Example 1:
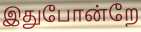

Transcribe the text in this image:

இதுபோன்றே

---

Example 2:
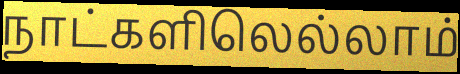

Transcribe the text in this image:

நாட்களிலெல்லாம்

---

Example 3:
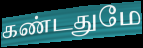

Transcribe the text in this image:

கண்டதுமே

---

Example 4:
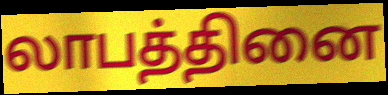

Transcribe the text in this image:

லாபத்தினை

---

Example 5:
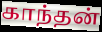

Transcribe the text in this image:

காந்தன்